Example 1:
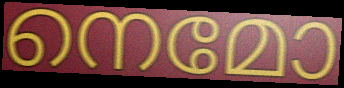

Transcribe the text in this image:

നെമോ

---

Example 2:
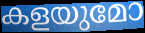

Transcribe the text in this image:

കളയുമോ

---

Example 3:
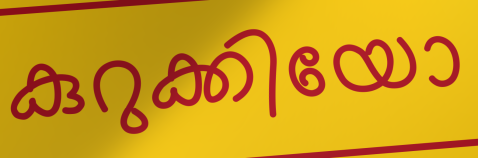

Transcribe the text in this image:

കുറുക്കിയോ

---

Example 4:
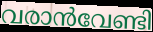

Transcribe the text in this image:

വരാൻവേണ്ടി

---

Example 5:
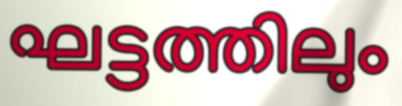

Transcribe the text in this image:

ഘട്ടത്തിലും